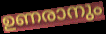
ഉണരാനും